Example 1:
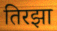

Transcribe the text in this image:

तिरझा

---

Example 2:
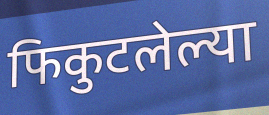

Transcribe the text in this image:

फिकुटलेल्या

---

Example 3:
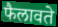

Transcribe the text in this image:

फैलावते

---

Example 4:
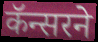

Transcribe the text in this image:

कॅन्सरने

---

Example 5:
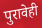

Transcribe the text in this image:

पुरावेही